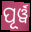
ପୂର୍ୱ